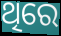
ଥିରେ